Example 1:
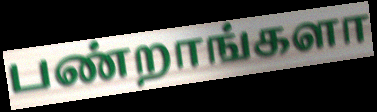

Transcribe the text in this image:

பண்றாங்களா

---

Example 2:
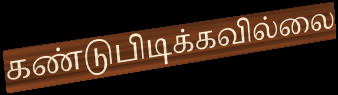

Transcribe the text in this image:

கண்டுபிடிக்கவில்லை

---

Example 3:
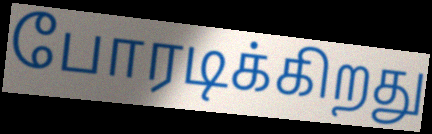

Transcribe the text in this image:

போரடிக்கிறது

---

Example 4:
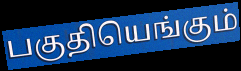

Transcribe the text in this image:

பகுதியெங்கும்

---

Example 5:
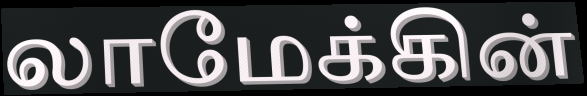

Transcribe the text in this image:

லாமேக்கின்